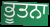
ਭੂਤਨਾ